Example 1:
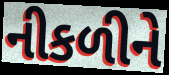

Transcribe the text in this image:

નીકળીને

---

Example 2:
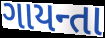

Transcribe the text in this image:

ગાયન્તા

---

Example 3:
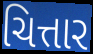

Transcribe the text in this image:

ચિત્તાર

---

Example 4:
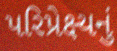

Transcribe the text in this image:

પરિપ્રેક્ષ્યનું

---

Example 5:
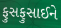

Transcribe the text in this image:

ફુસફુસાઈને